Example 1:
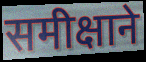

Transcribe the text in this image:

समीक्षाने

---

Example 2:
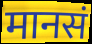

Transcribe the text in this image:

मानसं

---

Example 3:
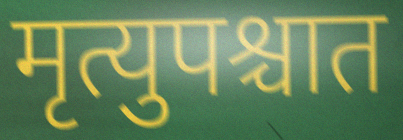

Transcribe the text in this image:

मृत्युपश्चात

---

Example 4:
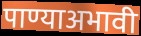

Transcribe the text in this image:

पाण्याअभावी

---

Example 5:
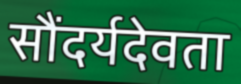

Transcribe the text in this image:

सौंदर्यदेवता